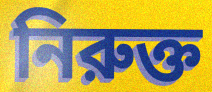
নিরুক্ত